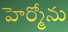
హెర్మోను